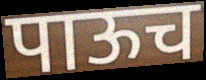
पाऊच